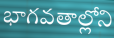
భాగవతాల్లోని